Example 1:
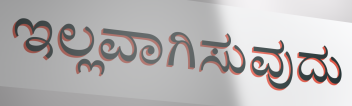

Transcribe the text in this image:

ಇಲ್ಲವಾಗಿಸುವುದು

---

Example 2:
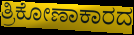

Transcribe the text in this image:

ತ್ರಿಕೋಣಾಕಾರದ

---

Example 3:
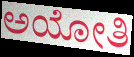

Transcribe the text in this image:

ಅಯೋತಿ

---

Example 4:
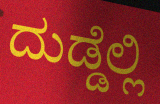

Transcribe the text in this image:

ದುಡ್ಡೆಲ್ಲಿ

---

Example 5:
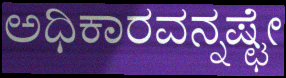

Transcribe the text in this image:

ಅಧಿಕಾರವನ್ನಷ್ಟೇ